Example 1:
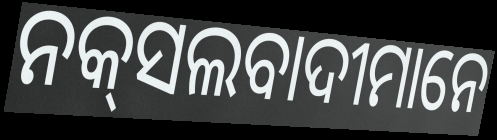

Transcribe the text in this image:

ନକ୍‌ସଲବାଦୀମାନେ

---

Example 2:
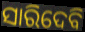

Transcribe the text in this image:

ସାରିଦେବି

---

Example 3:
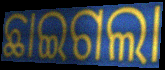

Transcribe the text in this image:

ଛାଇଗଲା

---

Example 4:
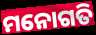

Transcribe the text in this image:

ମନୋଗତି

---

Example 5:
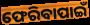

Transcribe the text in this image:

ଫେରିବାପାଇଁ